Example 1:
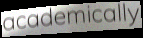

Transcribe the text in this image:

academically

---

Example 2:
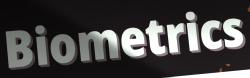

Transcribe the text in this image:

Biometrics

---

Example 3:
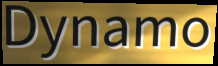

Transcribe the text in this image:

Dynamo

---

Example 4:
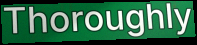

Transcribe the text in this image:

Thoroughly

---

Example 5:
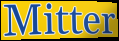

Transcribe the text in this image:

Mitter